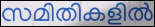
സമിതികളിൽ